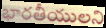
భారతీయులని